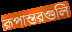
রূপান্তরগুলি